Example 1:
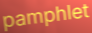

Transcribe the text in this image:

pamphlet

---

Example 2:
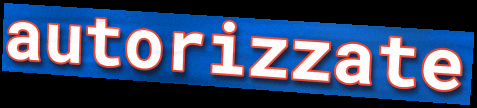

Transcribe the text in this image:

autorizzate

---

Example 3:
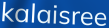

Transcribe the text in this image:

kalaisree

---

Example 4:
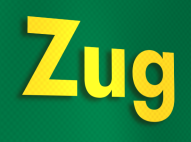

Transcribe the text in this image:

Zug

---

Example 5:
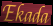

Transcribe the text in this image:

Ekada